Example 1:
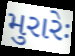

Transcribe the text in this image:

મુરારેઃ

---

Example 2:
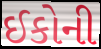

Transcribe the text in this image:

ઈકોની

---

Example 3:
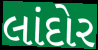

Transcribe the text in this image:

લાંદોર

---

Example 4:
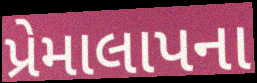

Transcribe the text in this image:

પ્રેમાલાપના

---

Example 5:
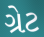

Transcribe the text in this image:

ગ્રેટ